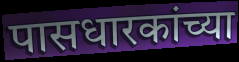
पासधारकांच्या